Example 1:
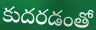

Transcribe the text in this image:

కుదరడంతో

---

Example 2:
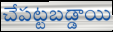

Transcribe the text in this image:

చేపట్టబడ్డాయి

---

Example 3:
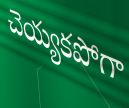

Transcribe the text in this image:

చెయ్యకపోగా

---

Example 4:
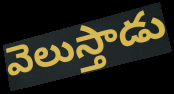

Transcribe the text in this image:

వెలుస్తాడు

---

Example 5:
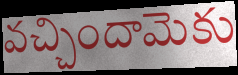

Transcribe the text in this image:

వచ్చిందామెకు